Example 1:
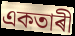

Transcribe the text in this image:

একতাৰী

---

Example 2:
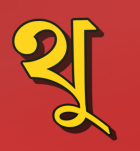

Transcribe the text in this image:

থু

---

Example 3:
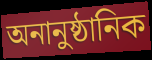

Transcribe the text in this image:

অনানুষ্ঠানিক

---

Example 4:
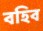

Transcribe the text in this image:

বহিব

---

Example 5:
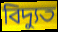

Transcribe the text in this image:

বিদ্যুত